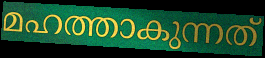
മഹത്താകുന്നത്